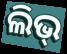
ଲିଭ୍